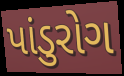
પાંડુરોગ